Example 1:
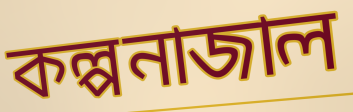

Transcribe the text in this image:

কল্পনাজাল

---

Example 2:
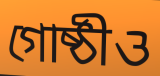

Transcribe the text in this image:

গোষ্ঠীও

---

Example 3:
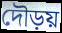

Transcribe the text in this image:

দৌড়য়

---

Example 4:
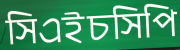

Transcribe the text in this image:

সিএইচসিপি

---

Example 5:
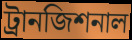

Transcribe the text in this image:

ট্রানজিশনাল